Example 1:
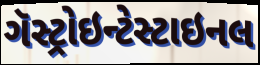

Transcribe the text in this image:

ગૅસ્ટ્રોઇન્ટેસ્ટાઇનલ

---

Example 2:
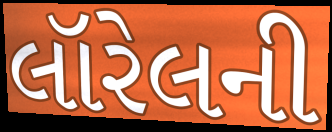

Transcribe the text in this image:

લૉરેલની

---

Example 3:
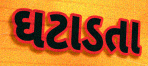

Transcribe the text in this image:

ઘટાડતા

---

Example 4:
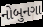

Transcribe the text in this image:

નોબુનગા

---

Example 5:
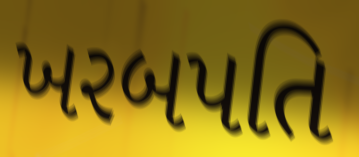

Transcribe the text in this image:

ખરબપતિ